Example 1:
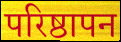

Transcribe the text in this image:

परिष्ठापन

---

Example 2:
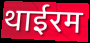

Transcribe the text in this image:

थाईरम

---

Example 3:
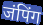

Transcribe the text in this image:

जंपिंग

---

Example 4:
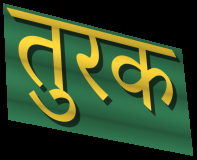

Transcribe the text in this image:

तुरक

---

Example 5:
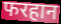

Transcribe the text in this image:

फरहान